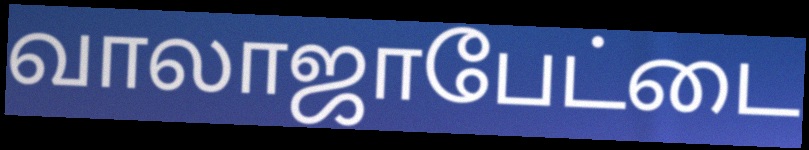
வாலாஜாபேட்டை